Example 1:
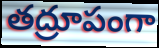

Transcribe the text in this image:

తద్రూపంగా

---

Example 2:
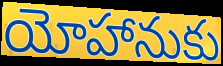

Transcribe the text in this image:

యోహానుకు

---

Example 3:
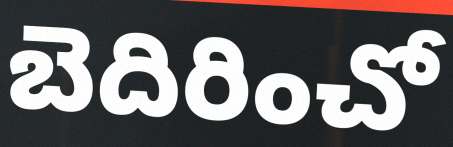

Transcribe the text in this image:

బెదిరించో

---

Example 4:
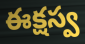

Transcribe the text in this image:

ఈక్షస్వ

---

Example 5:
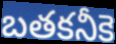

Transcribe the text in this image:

బతకనీకె